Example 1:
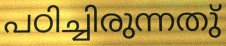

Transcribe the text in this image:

പഠിച്ചിരുന്നതു്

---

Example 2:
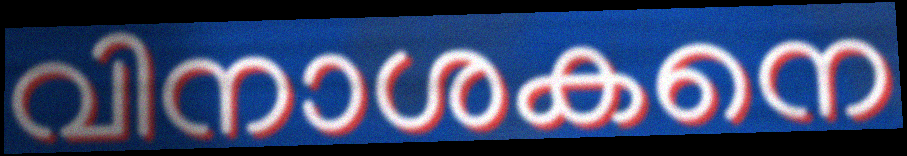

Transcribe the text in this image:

വിനാശകനെ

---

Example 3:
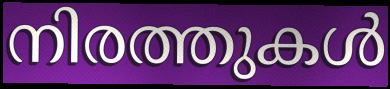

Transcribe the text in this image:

നിരത്തുകൾ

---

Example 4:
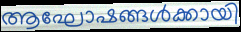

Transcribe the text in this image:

ആഘോഷങ്ങൾക്കായി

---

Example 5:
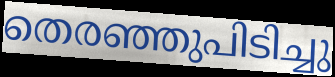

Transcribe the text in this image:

തെരഞ്ഞുപിടിച്ചു